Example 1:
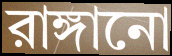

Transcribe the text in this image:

রাঙ্গানো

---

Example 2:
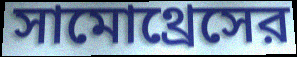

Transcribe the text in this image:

সামোথ্রেসের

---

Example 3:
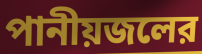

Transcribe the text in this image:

পানীয়জলের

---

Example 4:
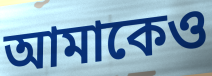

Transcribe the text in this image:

আমাকেও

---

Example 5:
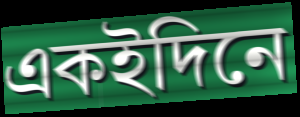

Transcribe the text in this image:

একইদিনে